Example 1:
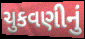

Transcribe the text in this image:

ચુકવણીનું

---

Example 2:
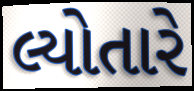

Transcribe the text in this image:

લ્યોતારે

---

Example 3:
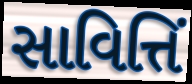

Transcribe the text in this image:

સાવિત્તિં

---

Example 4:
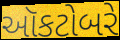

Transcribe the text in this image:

ઑકટોબરે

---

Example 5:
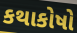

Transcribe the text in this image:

કથાકોષો